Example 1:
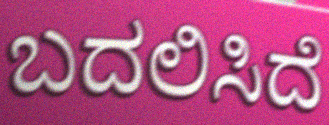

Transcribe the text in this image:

ಬದಲಿಸಿದೆ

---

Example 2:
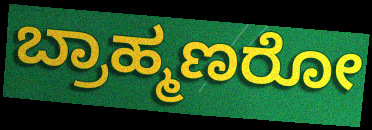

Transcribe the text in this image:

ಬ್ರಾಹ್ಮಣರೋ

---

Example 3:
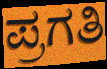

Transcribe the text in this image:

ಪ್ರಗತಿ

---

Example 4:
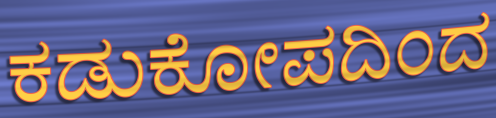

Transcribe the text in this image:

ಕಡುಕೋಪದಿಂದ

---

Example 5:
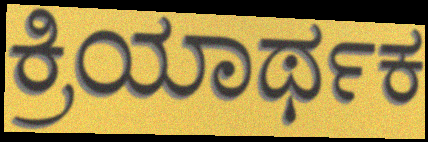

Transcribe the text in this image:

ಕ್ರಿಯಾರ್ಥಕ